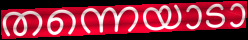
തന്നെയാടാ